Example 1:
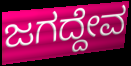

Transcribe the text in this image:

ಜಗದ್ದೇವ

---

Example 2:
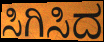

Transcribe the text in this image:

ಸಿಗಿಸಿದ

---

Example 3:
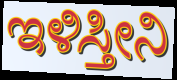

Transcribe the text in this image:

ಇಳಿಸ್ತೀನಿ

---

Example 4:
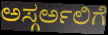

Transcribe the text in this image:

ಅಸ್ಗರ್ಅಲಿಗೆ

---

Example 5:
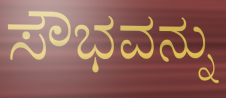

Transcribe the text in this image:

ಸೌಭವನ್ನು